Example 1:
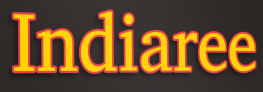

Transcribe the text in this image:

Indiaree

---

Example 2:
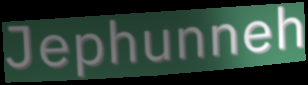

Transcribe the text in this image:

Jephunneh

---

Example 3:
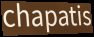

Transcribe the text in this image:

chapatis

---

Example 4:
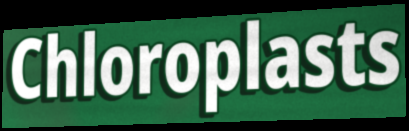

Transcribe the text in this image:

Chloroplasts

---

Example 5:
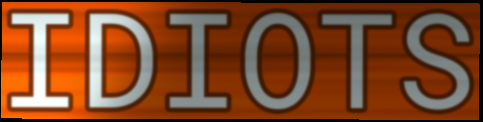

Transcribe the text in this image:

IDIOTS